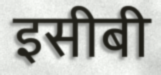
इसीबी